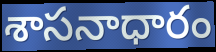
శాసనాధారం